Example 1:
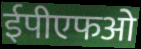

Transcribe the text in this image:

ईपीएफओ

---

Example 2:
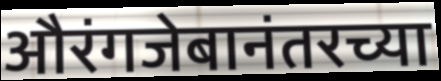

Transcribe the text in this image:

औरंगजेबानंतरच्या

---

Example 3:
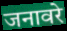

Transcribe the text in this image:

जनावरे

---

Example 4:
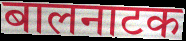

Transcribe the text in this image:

बालनाटक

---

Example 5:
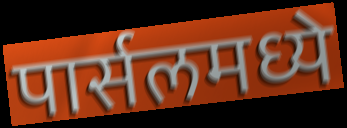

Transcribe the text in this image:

पार्सलमध्ये